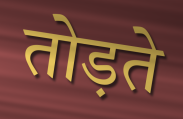
तोड़ते